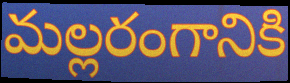
మల్లరంగానికి